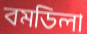
বমডিলা